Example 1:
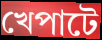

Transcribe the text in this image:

খেপাটে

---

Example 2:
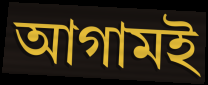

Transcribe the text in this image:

আগামই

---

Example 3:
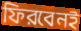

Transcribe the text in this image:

ফিরবেনই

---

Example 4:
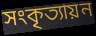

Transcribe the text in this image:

সংকৃত্যায়ন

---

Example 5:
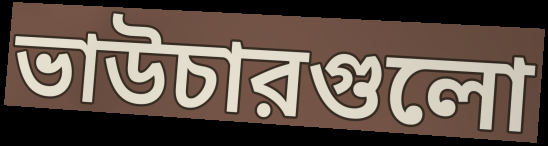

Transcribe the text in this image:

ভাউচারগুলো